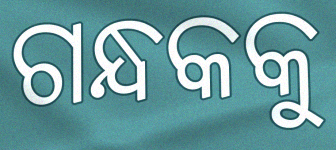
ଗନ୍ଧକକୁ